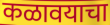
कळावयाचा